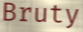
Bruty